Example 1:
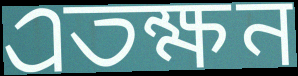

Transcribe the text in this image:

এতক্ষন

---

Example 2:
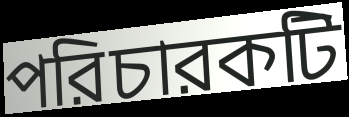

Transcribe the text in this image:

পরিচারকটি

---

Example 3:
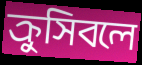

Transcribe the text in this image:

ক্রুসিবলে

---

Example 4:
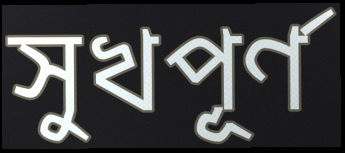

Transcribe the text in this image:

সুখপূর্ণ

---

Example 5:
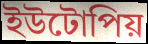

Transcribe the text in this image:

ইউটোপিয়